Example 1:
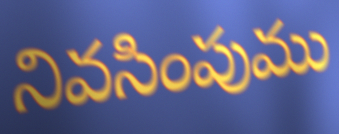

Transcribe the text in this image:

నివసింపుము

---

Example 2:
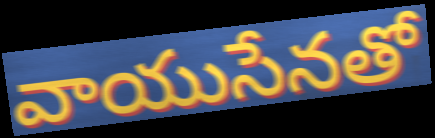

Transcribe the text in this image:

వాయుసేనతో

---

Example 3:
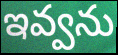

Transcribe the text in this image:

ఇవ్వను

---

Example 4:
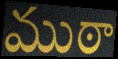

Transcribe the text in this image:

ముఠా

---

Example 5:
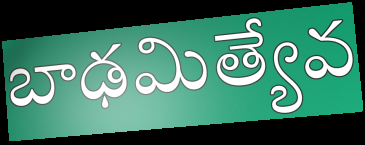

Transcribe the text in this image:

బాఢమిత్యేవ